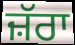
ਜ਼ੱਰਾ